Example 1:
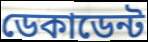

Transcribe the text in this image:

ডেকাডেন্ট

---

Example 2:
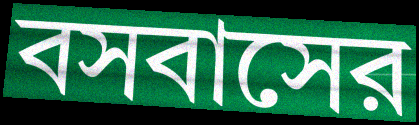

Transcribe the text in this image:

বসবাসের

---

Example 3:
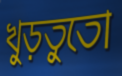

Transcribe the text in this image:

খুড়তুতো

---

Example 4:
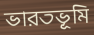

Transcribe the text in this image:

ভারতভূমি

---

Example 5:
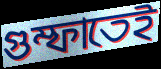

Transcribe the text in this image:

গুম্ফাতেই